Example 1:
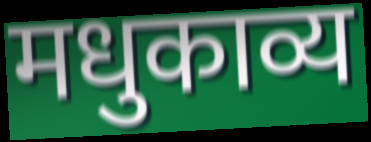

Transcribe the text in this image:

मधुकाव्य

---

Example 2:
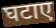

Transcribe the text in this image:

घटाए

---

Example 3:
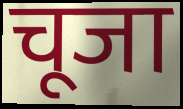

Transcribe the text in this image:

चूजा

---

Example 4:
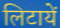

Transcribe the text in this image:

लिटायें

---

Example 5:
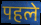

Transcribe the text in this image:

पहले